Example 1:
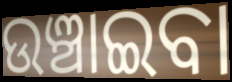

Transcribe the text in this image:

ଉଞ୍ଚାଇବା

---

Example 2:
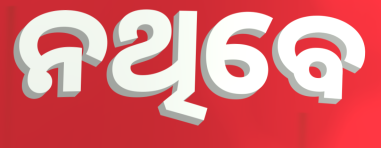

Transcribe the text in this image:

ନଥିବେ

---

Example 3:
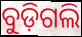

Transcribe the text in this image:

ବୁଡ଼ିଗଲି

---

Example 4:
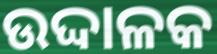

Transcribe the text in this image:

ଉଦ୍ଦାଳକ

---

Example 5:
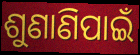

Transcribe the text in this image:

ଶୁଣାଣିପାଇଁ